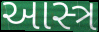
આસ્ત્ર